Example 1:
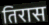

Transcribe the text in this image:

तिरास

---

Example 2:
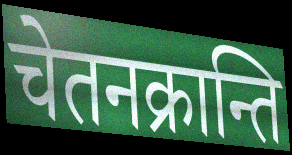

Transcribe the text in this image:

चेतनक्रान्ति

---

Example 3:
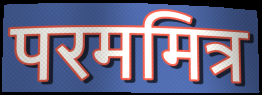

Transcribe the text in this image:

परममित्र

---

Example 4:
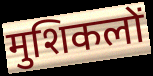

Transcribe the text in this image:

मुशिकलों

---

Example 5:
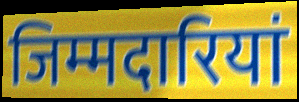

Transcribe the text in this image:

जिम्मदारियां